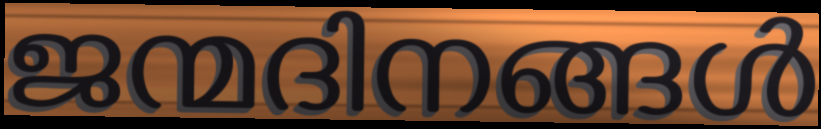
ജന്മദിനങ്ങൾ